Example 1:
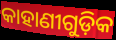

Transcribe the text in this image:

କାହାଣୀଗୁଡ଼ିକ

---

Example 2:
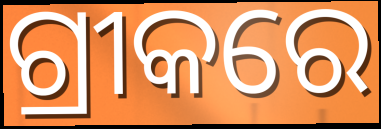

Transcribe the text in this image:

ଗ୍ରୀକରେ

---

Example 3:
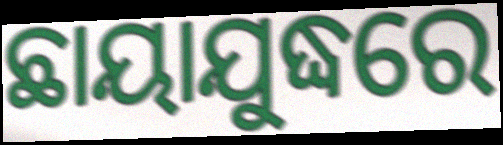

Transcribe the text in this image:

ଛାୟାଯୁଦ୍ଧରେ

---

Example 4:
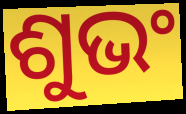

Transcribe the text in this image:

ଶୁଭଂ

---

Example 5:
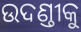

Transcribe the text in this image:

ଉଦଣ୍ଡୀକୁ